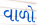
વાળો